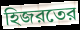
হিজরতের